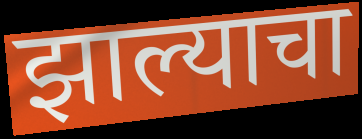
झाल्याचा